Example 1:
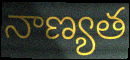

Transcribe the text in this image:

నాణ్యత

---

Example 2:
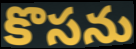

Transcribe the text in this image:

కొసను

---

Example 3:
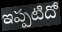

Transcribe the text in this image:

ఇప్పటిదో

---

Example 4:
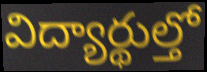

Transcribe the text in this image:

విద్యార్థుల్తో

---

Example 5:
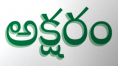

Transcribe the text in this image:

అక్షరం